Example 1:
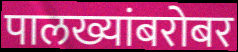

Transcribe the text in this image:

पालख्यांबरोबर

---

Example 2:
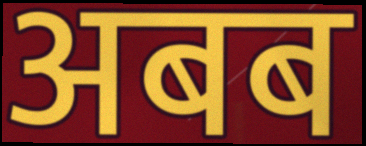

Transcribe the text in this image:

अबब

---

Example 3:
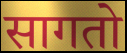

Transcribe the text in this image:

सागतो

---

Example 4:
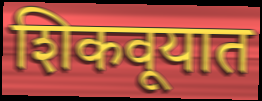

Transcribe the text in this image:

शिकवूयात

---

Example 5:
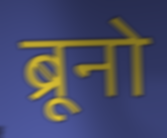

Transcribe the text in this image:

ब्रूनो